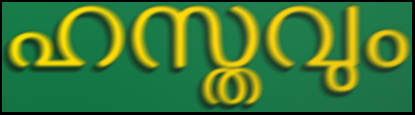
ഹസ്തവും